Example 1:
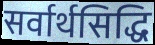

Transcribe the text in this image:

सर्वार्थसिद्धि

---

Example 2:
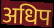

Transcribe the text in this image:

अधिप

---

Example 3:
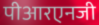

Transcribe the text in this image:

पीआरएनजी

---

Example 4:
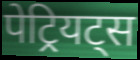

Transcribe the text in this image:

पेट्रियट्स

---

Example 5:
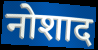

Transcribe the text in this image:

नोशाद